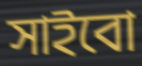
সাইবো